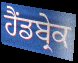
ਹੈਂਡਬ੍ਰੇਕ